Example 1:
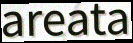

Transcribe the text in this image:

areata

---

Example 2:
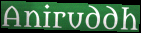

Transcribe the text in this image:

Aniruddh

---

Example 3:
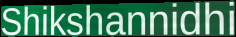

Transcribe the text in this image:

Shikshannidhi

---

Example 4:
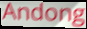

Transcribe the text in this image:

Andong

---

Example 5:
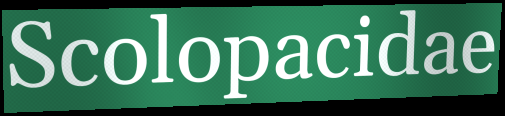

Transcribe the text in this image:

Scolopacidae